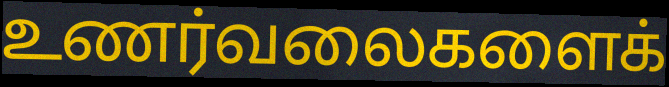
உணர்வலைகளைக்